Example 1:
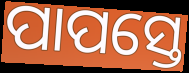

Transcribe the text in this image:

ପାପସ୍ତେ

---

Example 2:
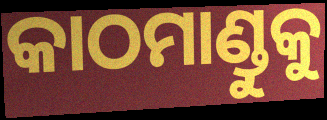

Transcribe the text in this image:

କାଠମାଣ୍ଡୁକୁ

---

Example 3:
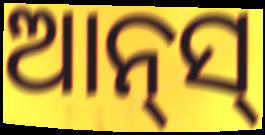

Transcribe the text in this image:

ଆନ୍‌ସ୍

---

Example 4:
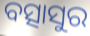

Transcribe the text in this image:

ବତ୍ସାସୁର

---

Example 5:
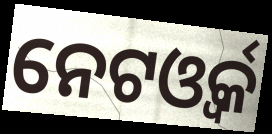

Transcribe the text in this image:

ନେଟଓ୍ବର୍କ